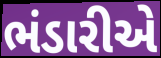
ભંડારીએ